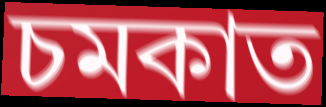
চমকাত